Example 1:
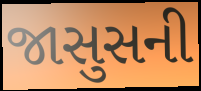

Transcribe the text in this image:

જાસુસની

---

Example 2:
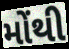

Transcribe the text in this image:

મોંથી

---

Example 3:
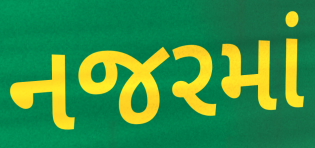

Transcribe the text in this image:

નજરમાં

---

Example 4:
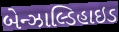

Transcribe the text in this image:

બેન્ઝાલ્ડિહાઇડ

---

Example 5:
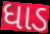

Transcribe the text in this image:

ધાડ